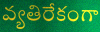
వ్యతిరేకంగా